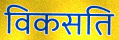
विकसति